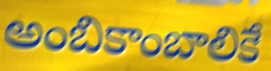
అంబికాంబాలికే